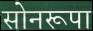
सोनरूपा